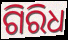
ଗିରିଧ